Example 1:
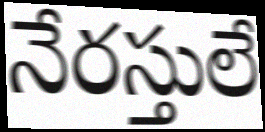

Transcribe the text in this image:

నేరస్తులే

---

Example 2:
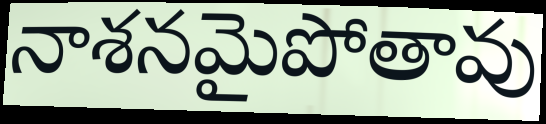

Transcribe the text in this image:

నాశనమైపోతావు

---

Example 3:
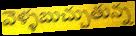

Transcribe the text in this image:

వెళ్ళబుచ్చుతున్న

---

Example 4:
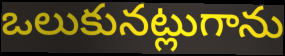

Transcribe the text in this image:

ఒలుకునట్లుగాను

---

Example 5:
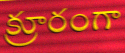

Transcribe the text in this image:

క్రూరంగా